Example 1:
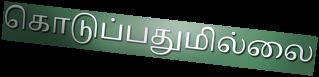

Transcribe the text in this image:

கொடுப்பதுமில்லை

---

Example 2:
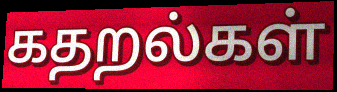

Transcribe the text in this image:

கதறல்கள்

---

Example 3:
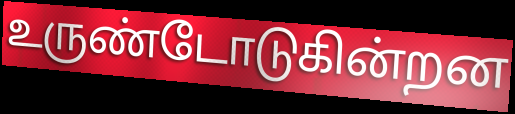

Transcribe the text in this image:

உருண்டோடுகின்றன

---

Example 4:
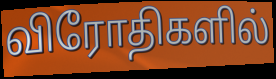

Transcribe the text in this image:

விரோதிகளில்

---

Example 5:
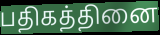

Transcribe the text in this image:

பதிகத்தினை